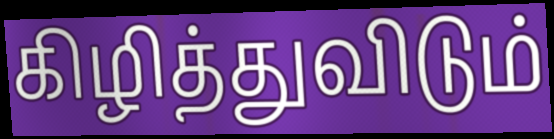
கிழித்துவிடும்